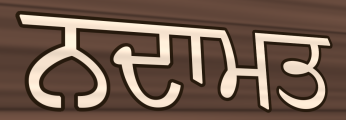
ਨਦਾਮਤ